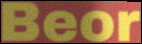
Beor